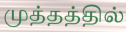
முத்தத்தில்